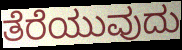
ತೆರೆಯುವುದು